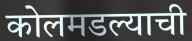
कोलमडल्याची